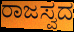
ರಾಜಸ್ವದ